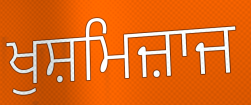
ਖੁਸ਼ਮਿਜ਼ਾਜ